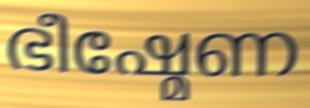
ഭീഷ്മേണ